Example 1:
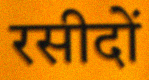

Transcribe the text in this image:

रसीदों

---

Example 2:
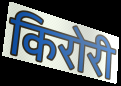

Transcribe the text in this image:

किरोरी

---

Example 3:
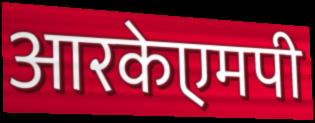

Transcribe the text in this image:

आरकेएमपी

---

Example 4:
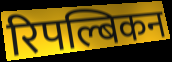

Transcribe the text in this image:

रिपल्बिकन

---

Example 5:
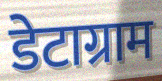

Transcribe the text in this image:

डेटाग्राम